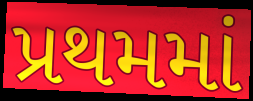
પ્રથમમાં